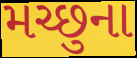
મચ્છુના